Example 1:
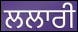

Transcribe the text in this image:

ਲਲਾਰੀ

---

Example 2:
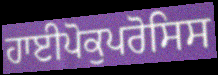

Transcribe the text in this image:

ਹਾਈਪੋਕੁਪਰੋਸਿਸ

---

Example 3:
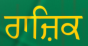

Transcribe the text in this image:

ਰਾਜ਼ਿਕ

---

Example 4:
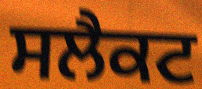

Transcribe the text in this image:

ਸਲੈਕਟ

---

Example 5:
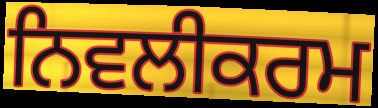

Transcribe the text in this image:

ਨਿਵਲੀਕਰਮ